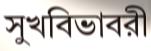
সুখবিভাবরী